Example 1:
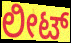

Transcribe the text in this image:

ಲೀಟ್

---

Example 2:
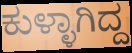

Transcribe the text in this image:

ಕುಳ್ಳಾಗಿದ್ದ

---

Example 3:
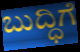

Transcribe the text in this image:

ಬುದ್ಧಿಗೆ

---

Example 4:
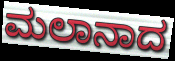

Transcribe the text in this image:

ಮಲಾನಾದ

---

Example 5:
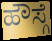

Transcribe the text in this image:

ಹೌಸ್ಗೆ